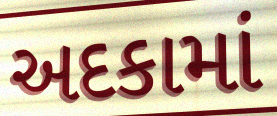
અદકામાં